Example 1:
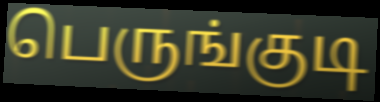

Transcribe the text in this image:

பெருங்குடி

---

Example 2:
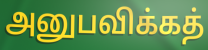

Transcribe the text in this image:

அனுபவிக்கத்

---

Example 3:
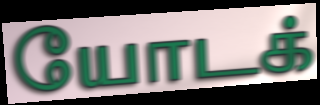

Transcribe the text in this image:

யோடக்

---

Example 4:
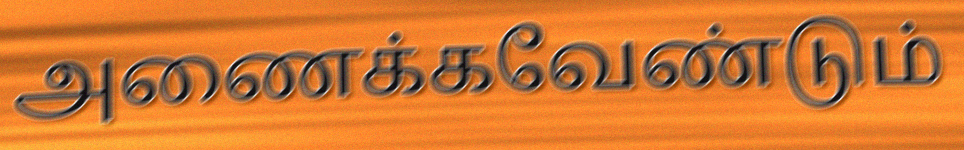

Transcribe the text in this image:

அணைக்கவேண்டும்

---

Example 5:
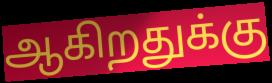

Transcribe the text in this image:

ஆகிறதுக்கு